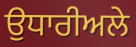
ਉਧਾਰੀਅਲੇ